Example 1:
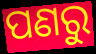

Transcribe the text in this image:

ପଣରୁ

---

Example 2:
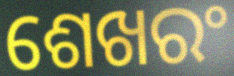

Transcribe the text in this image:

ଶେଖରଂ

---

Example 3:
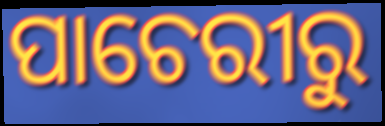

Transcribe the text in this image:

ପାଚେରୀରୁ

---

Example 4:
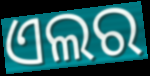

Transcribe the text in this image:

ଏଲର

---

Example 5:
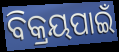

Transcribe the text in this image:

ବିକ୍ରୟପାଇଁ